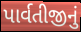
પાર્વતીજીનું